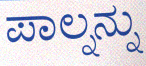
ಪಾಲ್ನನ್ನು